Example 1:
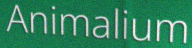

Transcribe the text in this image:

Animalium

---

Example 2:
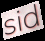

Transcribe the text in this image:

sid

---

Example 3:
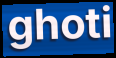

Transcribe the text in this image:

ghoti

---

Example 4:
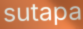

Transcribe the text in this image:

sutapa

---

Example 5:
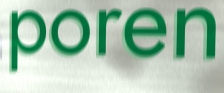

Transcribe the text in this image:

poren